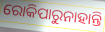
ରୋକିପାରୁନାହାନ୍ତି